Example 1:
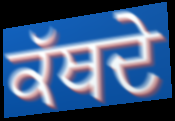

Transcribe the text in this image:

ਕੱਥਦੇ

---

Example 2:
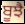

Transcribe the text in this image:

ਬੂਝੈ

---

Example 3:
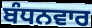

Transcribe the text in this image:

ਬੰਧਨਵਾਰ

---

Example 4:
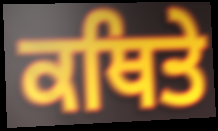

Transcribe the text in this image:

ਕਥਿਤੇ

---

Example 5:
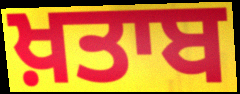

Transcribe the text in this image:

ਖ਼ਤਾਬ